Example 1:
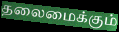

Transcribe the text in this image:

தலைமைக்கும்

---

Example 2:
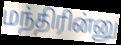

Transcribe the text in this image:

மந்திரின்னு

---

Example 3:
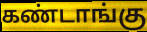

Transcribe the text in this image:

கண்டாங்கு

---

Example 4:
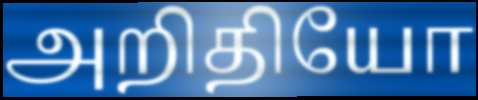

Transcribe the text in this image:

அறிதியோ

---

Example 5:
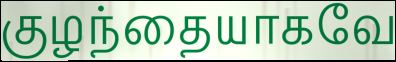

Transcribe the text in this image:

குழந்தையாகவே